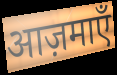
आज़माएँ